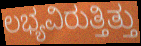
ಲಭ್ಯವಿರುತ್ತಿತ್ತು